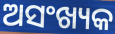
ଅସଂଖ୍ୟକ